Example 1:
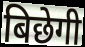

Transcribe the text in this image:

बिछेगी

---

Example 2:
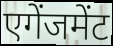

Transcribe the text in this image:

एगेंजमेंट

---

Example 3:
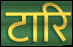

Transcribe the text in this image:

टारि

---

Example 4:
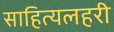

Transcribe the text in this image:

साहित्यलहरी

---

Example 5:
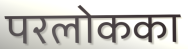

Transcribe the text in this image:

परलोकका